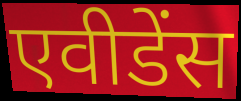
एवीडेंस